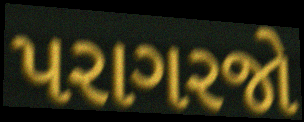
પરાગરજો